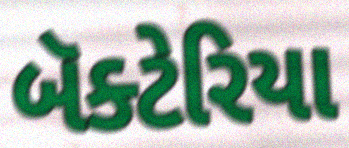
બૅક્ટેરિયા